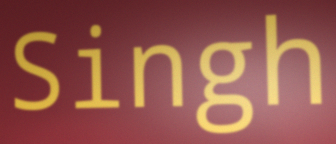
Singh